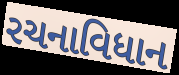
રચનાવિધાન